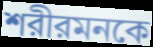
শরীরমনকে